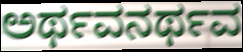
ಅರ್ಥವನರ್ಥವ